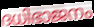
ദധിഭാജനം